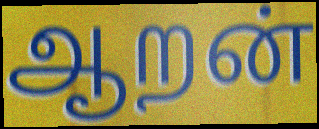
ஆறன்